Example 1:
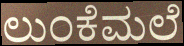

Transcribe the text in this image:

ಲುಂಕೆಮಲೆ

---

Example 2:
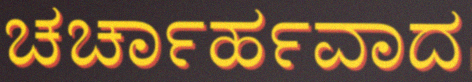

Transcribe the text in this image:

ಚರ್ಚಾರ್ಹವಾದ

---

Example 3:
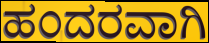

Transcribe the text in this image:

ಹಂದರವಾಗಿ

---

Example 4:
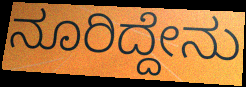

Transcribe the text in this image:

ನೂರಿದ್ದೇನು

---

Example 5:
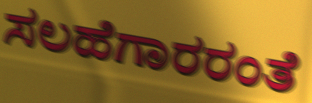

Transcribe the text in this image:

ಸಲಹೆಗಾರರಂತೆ